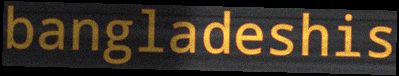
bangladeshis